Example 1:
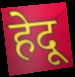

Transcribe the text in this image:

हेदू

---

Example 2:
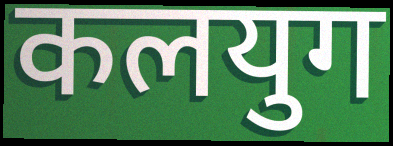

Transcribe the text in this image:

कलयुग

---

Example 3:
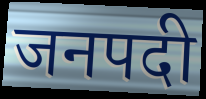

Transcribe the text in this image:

जनपदी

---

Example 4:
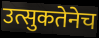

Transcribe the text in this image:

उत्सुकतेनेच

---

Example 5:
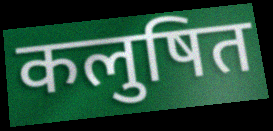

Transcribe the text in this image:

कलुषित